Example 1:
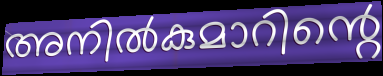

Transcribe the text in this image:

അനിൽകുമാറിന്റെ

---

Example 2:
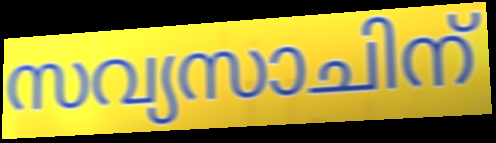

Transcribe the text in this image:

സവ്യസാചിന്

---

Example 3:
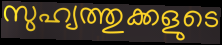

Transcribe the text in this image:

സുഹ്യത്തുക്കളുടെ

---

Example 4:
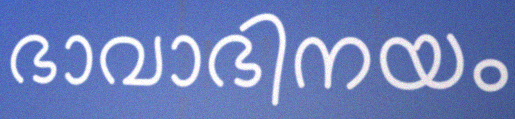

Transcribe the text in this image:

ഭാവാഭിനയം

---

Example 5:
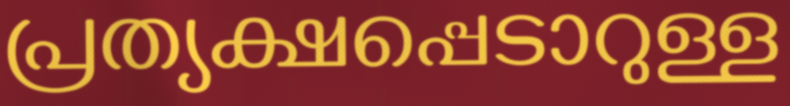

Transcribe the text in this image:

പ്രത്യക്ഷപ്പെടാറുള്ള